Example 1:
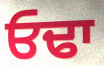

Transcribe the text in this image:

ਓਢਾ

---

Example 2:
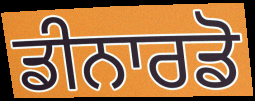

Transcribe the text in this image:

ਡੀਨਾਰਡੋ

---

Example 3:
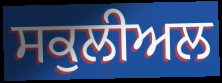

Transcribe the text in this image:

ਸਕੁਲੀਅਲ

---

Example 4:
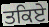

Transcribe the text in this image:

ਤਕਿਏ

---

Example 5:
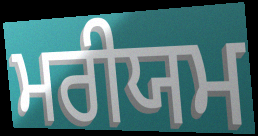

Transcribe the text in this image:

ਮਰੀਯਮ